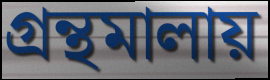
গ্রন্থমালায়